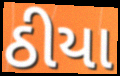
ઠીયા